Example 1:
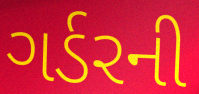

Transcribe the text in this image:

ગર્ડરની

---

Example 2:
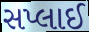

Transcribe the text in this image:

સપ્લાઈ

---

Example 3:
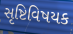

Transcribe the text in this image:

સૃષ્ટિવિષયક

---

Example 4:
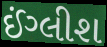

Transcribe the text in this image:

ઈંગ્લીશ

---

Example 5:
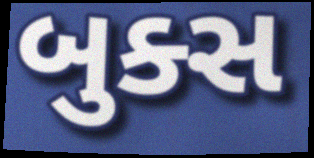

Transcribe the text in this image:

બુક્સ